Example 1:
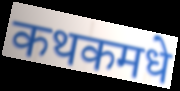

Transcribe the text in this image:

कथकमधे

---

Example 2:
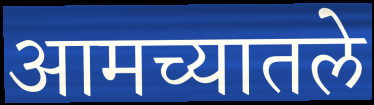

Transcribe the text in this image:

आमच्यातले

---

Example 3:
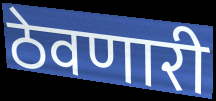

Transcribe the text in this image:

ठेवणारी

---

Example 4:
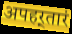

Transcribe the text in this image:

अपहर्तारं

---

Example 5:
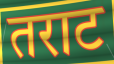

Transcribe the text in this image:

तराट